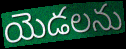
యెడలను